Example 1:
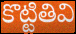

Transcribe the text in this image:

కొట్టితివి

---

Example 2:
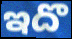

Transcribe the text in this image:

ఇదొ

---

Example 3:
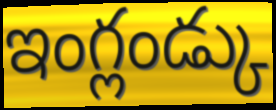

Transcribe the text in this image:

ఇంగ్లండ్కు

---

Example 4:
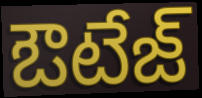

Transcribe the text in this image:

ఔటేజ్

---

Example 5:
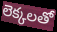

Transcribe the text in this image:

లెక్కలతో